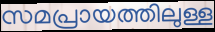
സമപ്രായത്തിലുള്ള